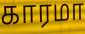
காரமா